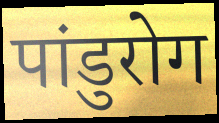
पांडुरोग